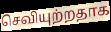
செவியுற்றதாக